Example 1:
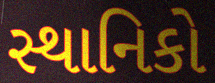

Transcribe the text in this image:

સ્થાનિકો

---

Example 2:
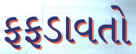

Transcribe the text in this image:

ફફડાવતો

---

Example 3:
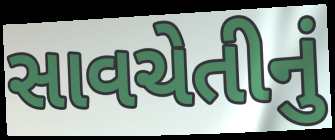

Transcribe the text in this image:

સાવચેતીનું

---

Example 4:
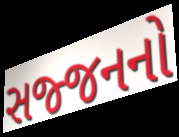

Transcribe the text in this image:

સજ્જનનો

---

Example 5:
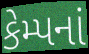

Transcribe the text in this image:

કેમ્પનાં